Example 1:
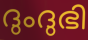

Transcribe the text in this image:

ദുംദുഭി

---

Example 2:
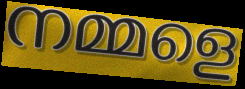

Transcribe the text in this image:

നമ്മളെ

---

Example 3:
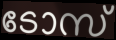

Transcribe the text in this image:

ടോസ്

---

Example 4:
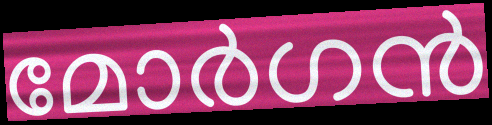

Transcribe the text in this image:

മോർഗൻ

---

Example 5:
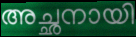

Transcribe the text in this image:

അച്ഛനായി